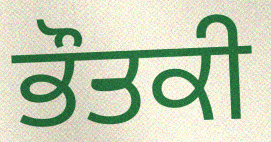
ਭੌਤਕੀ